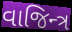
વાજિન્ત્ર